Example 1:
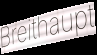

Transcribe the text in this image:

Breithaupt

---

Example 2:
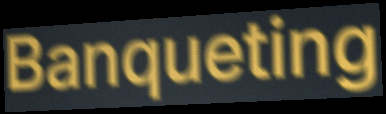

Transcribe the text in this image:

Banqueting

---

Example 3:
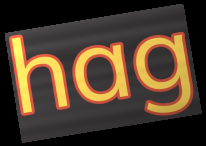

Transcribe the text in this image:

hag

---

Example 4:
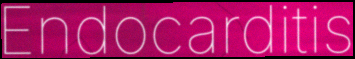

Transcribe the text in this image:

Endocarditis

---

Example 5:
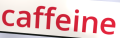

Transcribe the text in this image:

caffeine